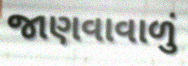
જાણવાવાળું